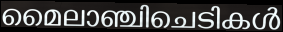
മൈലാഞ്ചിചെടികൾ